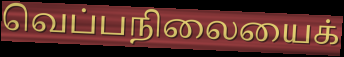
வெப்பநிலையைக்